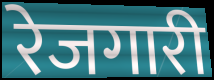
रेजगारी